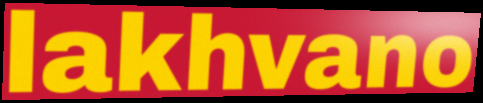
lakhvano